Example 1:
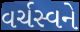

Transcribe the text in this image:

વર્ચસ્વને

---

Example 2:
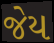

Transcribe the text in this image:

જેય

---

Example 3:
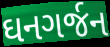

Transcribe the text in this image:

ઘનગર્જન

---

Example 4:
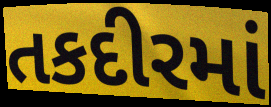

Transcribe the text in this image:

તકદીરમાં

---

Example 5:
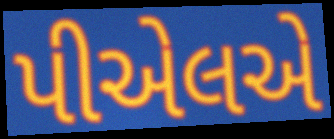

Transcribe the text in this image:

પીએલએ